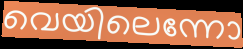
വെയിലെന്നോ